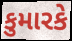
કુમારકે